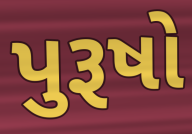
પુરૂષો